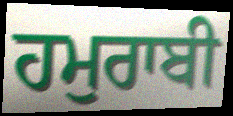
ਹਮੁਰਾਬੀ